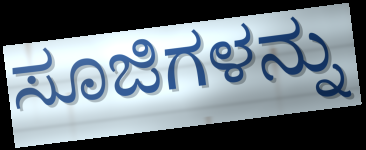
ಸೂಜಿಗಳನ್ನು